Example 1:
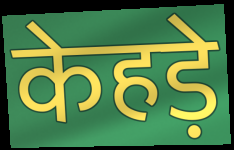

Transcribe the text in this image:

केहड़े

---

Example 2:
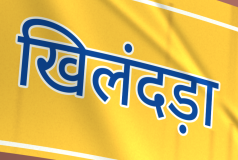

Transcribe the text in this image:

खिलंदड़ा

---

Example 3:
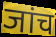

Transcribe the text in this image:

जांच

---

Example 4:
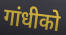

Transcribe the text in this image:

गांधीको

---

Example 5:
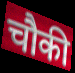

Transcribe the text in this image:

चौकी